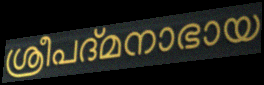
ശ്രീപദ്മനാഭായ